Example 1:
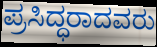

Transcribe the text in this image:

ಪ್ರಸಿದ್ಧರಾದವರು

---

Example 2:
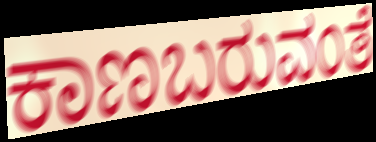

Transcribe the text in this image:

ಕಾಣಬರುವಂತೆ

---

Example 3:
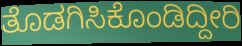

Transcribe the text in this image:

ತೊಡಗಿಸಿಕೊಂಡಿದ್ದೀರಿ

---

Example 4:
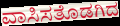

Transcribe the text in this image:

ವಾಸಿಸತೊಡಗಿದ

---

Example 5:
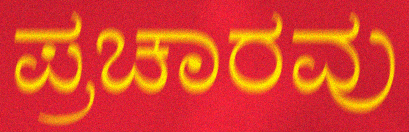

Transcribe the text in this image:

ಪ್ರಚಾರವು